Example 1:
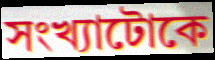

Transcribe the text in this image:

সংখ্যাটোকে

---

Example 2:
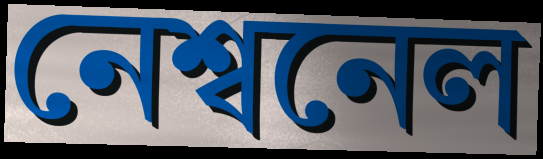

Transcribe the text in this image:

নেশ্বনেল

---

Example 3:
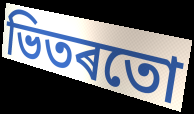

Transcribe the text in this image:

ভিতৰতো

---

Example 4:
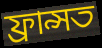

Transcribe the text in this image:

ফ্ৰান্সত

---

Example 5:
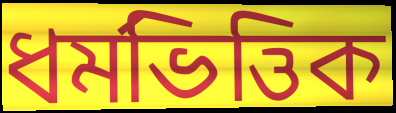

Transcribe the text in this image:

ধৰ্মভিত্তিক